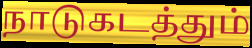
நாடுகடத்தும்